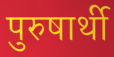
पुरुषार्थी